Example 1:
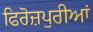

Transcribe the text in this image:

ਫਿਰੋਜ਼ਪੁਰੀਆਂ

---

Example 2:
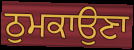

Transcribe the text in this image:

ਠੁਮਕਾਉਣਾ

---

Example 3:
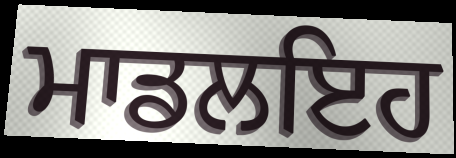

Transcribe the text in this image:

ਮਾਡਲਇਹ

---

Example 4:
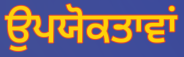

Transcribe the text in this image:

ਉਪਯੋਕਤਾਵਾਂ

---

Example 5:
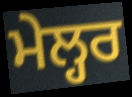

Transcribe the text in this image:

ਮੇਲ੍ਹਰ